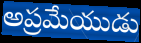
అప్రమేయుడు